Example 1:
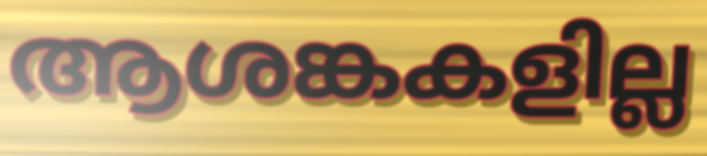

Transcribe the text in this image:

ആശങ്കകളില്ല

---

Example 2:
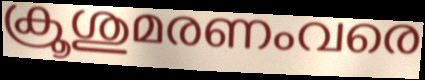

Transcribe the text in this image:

ക്രൂശുമരണംവരെ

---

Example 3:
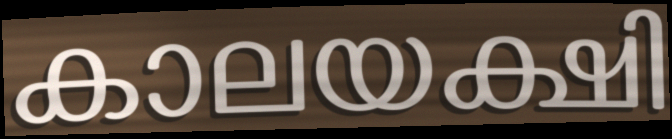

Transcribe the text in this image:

കാലയക്ഷി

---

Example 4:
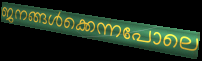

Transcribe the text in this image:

ജനങ്ങൾക്കെന്നപോലെ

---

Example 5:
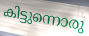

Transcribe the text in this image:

കിട്ടുന്നൊരു